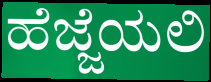
ಹೆಜ್ಜೆಯಲಿ